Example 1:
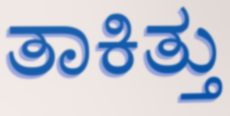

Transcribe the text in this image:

ತಾಕಿತ್ತು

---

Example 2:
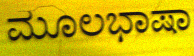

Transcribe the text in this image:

ಮೂಲಭಾಷಾ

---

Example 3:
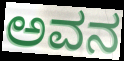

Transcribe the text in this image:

ಅವನ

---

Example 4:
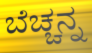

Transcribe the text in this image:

ಬೆಚ್ಚನ್ನ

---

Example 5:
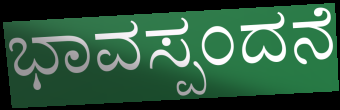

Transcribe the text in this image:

ಭಾವಸ್ಪಂದನೆ